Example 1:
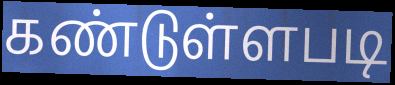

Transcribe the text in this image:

கண்டுள்ளபடி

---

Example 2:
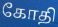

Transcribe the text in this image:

கோதி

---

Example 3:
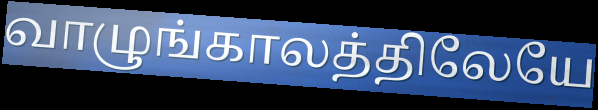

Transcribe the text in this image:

வாழுங்காலத்திலேயே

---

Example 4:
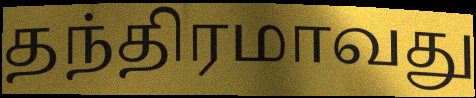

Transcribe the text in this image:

தந்திரமாவது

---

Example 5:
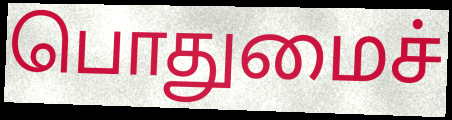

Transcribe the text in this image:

பொதுமைச்